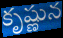
కృష్ణున